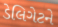
ડેલિગેટને